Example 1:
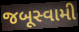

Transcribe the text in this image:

જબૂસ્વામી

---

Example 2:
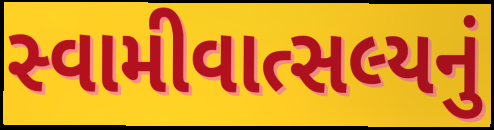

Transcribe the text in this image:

સ્વામીવાત્સલ્યનું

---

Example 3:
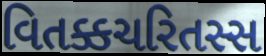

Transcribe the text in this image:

વિતક્કચરિતસ્સ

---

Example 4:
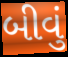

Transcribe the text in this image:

બીવું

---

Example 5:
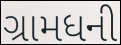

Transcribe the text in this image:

ગ્રામધની